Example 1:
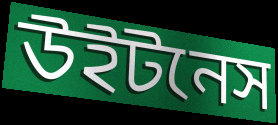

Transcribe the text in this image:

উইটনেস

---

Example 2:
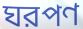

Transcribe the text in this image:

ঘরপণ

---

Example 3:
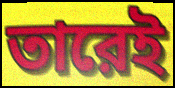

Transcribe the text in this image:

তারেই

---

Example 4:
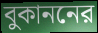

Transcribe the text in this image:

বুকাননের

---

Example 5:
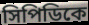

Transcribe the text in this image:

সিপিডিকে